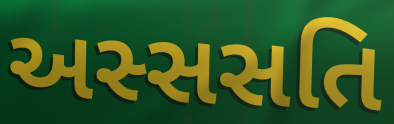
અસ્સસતિ